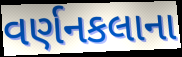
વર્ણનકલાના